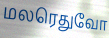
மலரெதுவோ